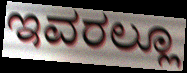
ಇವರಲ್ಲೂ